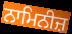
ਨਾਮਿਨੀਜ਼